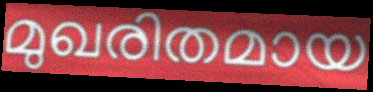
മുഖരിതമായ